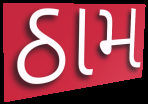
ઠામ